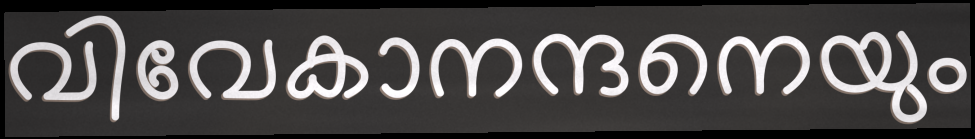
വിവേകാനന്ദനെയും